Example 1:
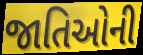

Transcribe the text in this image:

જાતિઓની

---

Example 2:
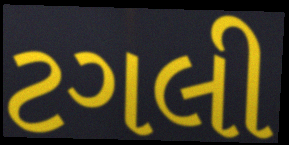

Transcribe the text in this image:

ટગલી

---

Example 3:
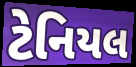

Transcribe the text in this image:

ટેનિયલ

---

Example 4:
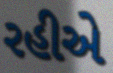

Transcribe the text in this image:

રહીએ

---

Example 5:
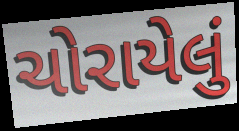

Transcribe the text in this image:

ચોરાયેલું